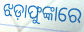
ଝଡ଼ାଫୁଙ୍କାରେ